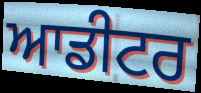
ਆਡੀਟਰ